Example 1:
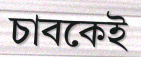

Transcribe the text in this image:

চাবকেই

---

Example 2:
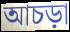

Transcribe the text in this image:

আচড়া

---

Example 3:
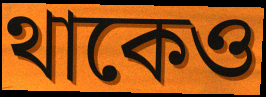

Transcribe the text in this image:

থাকেও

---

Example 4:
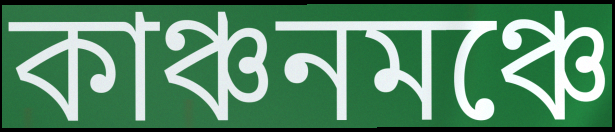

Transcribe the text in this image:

কাঞ্চনমঞ্চে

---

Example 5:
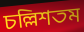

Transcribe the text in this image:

চল্লিশতম